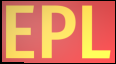
EPL